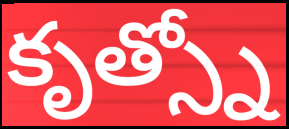
కృత్స్నో